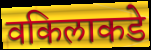
वकिलाकडे